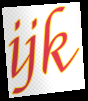
ijk